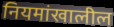
नियमांखालील